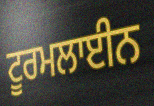
ਟੂਰਮਲਾਈਨ